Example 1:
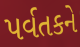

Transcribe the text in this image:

પર્વતકને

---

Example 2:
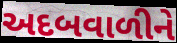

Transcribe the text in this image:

અદબવાળીને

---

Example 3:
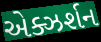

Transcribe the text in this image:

એક્ઝર્શન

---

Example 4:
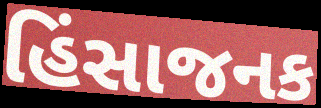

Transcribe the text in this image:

હિંસાજનક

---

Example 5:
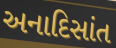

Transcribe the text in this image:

અનાદિસાંત